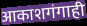
आकाशगंगाही